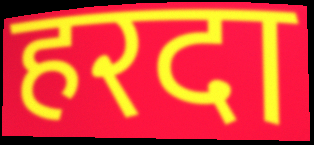
हरदा